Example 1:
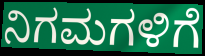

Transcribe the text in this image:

ನಿಗಮಗಳಿಗೆ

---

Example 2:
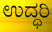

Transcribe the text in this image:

ಉದ್ಧರಿ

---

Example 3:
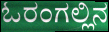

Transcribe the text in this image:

ಓರಂಗಲ್ಲಿನ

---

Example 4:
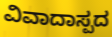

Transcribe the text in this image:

ವಿವಾದಾಸ್ಪದ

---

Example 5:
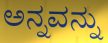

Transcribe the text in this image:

ಅನ್ನವನ್ನು